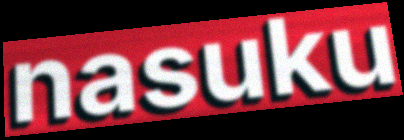
nasuku